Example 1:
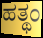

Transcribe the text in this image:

ಹತ್ಥಂ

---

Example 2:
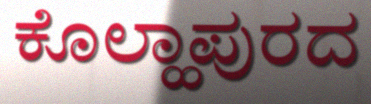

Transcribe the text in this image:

ಕೊಲ್ಹಾಪುರದ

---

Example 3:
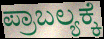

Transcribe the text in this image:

ಪ್ರಾಬಲ್ಯಕ್ಕೆ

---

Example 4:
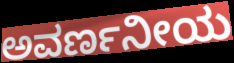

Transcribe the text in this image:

ಅವರ್ಣನೀಯ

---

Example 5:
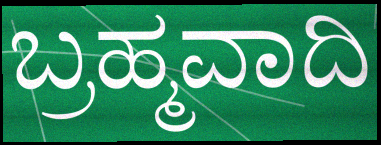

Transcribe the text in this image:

ಬ್ರಹ್ಮವಾದಿ